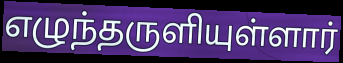
எழுந்தருளியுள்ளார்